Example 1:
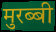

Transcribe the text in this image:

मुरब्बी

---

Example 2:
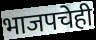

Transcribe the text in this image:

भाजपचेही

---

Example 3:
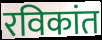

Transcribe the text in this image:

रविकांत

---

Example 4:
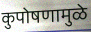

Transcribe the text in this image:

कुपोषणामुळे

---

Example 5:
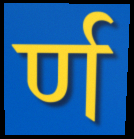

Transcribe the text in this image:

र्ण